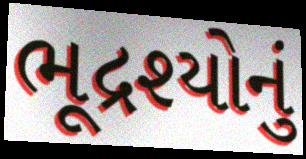
ભૂદ્રશ્યોનું